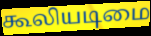
கூலியடிமை